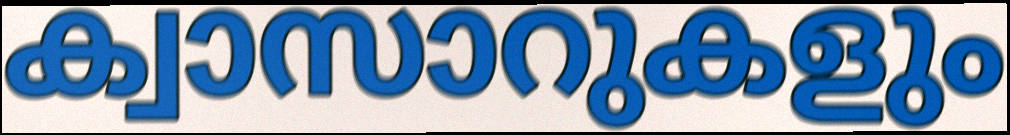
ക്വാസാറുകളും